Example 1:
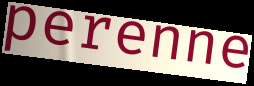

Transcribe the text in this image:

perenne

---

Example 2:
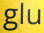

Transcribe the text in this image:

glu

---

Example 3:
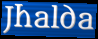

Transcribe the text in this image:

Jhalda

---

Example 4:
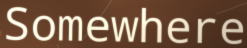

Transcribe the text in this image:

Somewhere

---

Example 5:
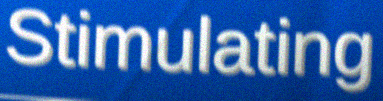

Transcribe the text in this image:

Stimulating